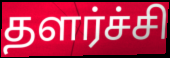
தளர்ச்சி